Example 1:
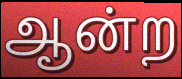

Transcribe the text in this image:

ஆன்ற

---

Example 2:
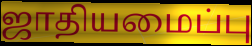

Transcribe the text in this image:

ஜாதியமைப்பு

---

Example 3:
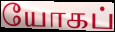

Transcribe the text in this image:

யோகப்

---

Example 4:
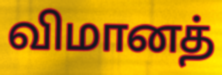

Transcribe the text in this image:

விமானத்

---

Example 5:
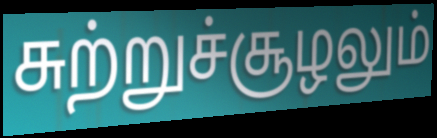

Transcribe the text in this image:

சுற்றுச்சூழலும்